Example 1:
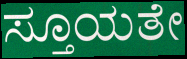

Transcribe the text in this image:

ಸ್ತೂಯತೇ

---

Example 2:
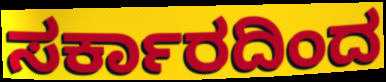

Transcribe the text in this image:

ಸರ್ಕಾರದಿಂದ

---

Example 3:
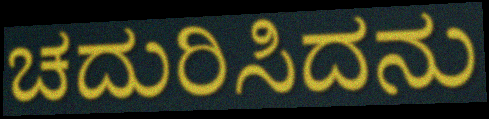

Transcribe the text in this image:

ಚದುರಿಸಿದನು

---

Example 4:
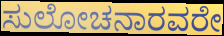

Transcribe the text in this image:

ಸುಲೋಚನಾರವರೇ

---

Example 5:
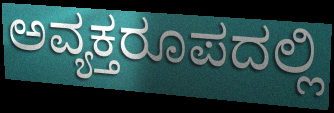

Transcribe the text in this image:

ಅವ್ಯಕ್ತರೂಪದಲ್ಲಿ